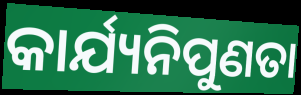
କାର୍ଯ୍ୟନିପୁଣତା